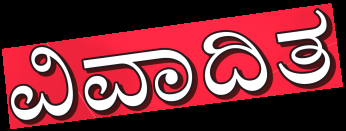
ವಿವಾದಿತ